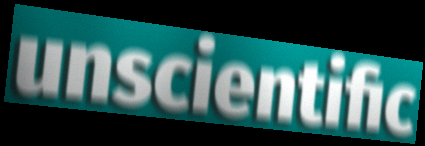
unscientific